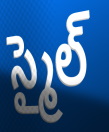
స్మైల్